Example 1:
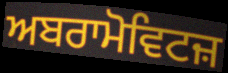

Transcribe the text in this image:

ਅਬਰਾਮੋਵਿਟਜ਼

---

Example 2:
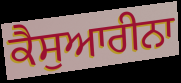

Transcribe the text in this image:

ਕੈਸੁਆਰੀਨਾ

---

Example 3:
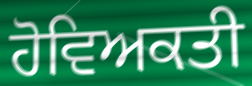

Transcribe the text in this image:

ਹੋਵਿਅਕਤੀ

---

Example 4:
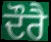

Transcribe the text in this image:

ਦੌਰੈ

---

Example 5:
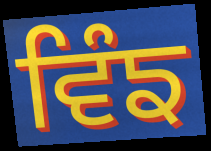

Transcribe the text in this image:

ਵਿੰਙ